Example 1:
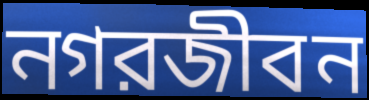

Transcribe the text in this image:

নগরজীবন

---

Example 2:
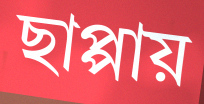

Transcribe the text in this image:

ছাপ্পায়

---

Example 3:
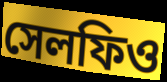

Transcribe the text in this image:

সেলফিও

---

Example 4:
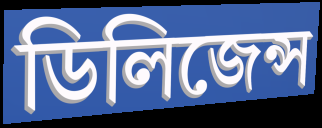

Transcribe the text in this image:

ডিলিজেন্স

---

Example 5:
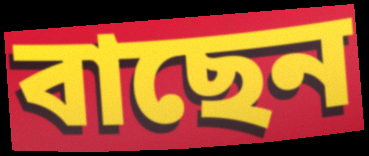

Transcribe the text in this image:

বাছেন